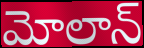
మోలాన్